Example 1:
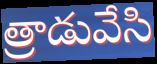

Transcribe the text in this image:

త్రాడువేసి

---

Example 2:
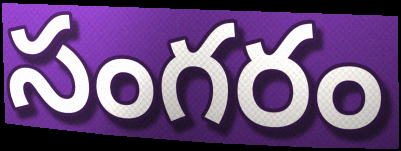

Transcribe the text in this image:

సంగరం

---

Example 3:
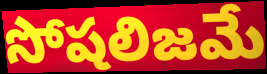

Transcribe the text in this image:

సోషలిజమే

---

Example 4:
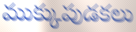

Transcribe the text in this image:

ముక్కుపుడకలు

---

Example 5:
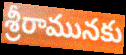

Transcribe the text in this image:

శ్రీరామునకు